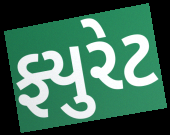
ફ્યુરેટ